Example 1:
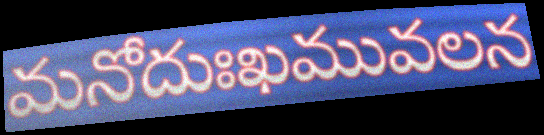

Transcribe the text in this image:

మనోదుఃఖమువలన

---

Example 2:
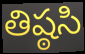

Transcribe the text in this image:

తిష్ఠసి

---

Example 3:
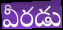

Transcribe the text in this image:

వీరడు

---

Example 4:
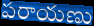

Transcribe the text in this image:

పరాయణు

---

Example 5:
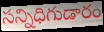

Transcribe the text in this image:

సన్నిధిగుడారం